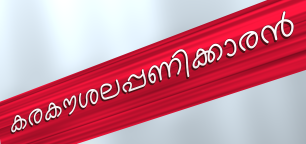
കരകൗശലപ്പണിക്കാരൻ